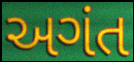
અગંત